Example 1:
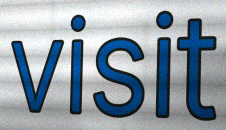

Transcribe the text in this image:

visit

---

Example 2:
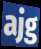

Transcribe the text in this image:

ajg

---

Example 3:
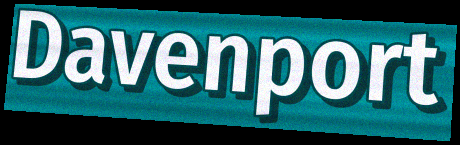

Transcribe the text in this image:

Davenport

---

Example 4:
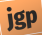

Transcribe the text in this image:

jgp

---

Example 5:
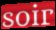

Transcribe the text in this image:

soir